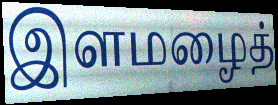
இளமழைத்